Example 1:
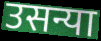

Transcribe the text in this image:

उसन्या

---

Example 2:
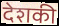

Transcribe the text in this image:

देशकी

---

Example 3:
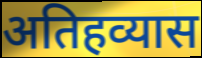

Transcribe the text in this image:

अतिहव्यास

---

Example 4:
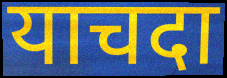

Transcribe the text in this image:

याचदा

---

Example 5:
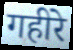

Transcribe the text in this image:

गहीरे